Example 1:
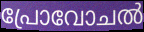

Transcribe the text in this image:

പ്രോവോചൽ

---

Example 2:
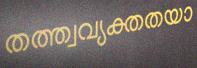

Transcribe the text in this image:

തത്ത്വവ്യക്തതയാ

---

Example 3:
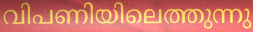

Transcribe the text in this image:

വിപണിയിലെത്തുന്നു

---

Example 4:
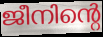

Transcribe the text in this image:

ജീനിന്റെ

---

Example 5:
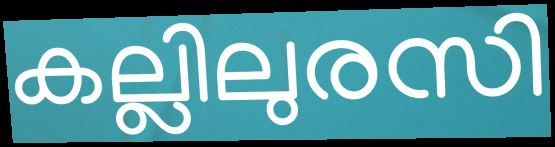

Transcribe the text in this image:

കല്ലിലുരസി